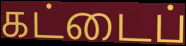
கட்டைப்